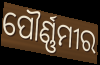
ପୌର୍ଣ୍ଣମୀର